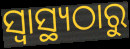
ସ୍ବାସ୍ଥ୍ୟଠାରୁ